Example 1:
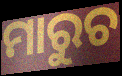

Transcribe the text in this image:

ମାରୁଚ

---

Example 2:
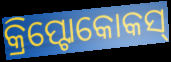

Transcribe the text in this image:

କ୍ରିପ୍ଟୋକୋକସ୍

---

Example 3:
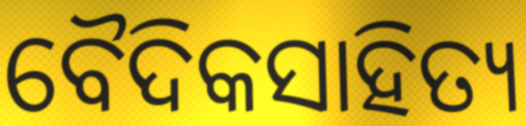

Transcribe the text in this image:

ବୈଦିକସାହିତ୍ୟ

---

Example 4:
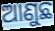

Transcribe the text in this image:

ଆଣୁଛ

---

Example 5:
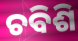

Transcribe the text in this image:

ଚବିଶି